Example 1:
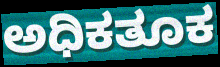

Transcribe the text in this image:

ಅಧಿಕತೂಕ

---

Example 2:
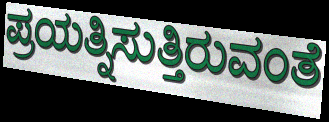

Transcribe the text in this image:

ಪ್ರಯತ್ನಿಸುತ್ತಿರುವಂತೆ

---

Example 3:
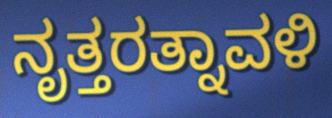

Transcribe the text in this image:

ನೃತ್ತರತ್ನಾವಳಿ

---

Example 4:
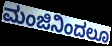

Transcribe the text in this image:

ಮಂಜಿನಿಂದಲೂ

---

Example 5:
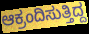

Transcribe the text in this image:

ಆಕ್ರಂದಿಸುತ್ತಿದ್ದ